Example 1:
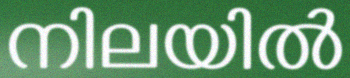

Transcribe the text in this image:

നിലയിൽ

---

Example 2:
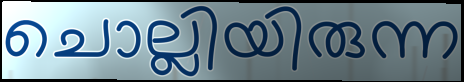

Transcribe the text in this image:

ചൊല്ലിയിരുന്ന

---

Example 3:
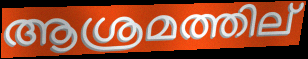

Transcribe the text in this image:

ആശ്രമത്തില്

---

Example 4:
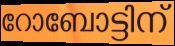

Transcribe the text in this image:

റോബോട്ടിന്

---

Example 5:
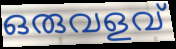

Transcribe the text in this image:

ഒരുവളവ്